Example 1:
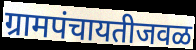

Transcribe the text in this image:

ग्रामपंचायतीजवळ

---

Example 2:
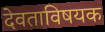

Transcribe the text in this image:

देवताविषयक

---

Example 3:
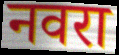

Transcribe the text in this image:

नवरा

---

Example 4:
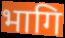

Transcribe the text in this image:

भागि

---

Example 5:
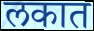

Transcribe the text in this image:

लकात